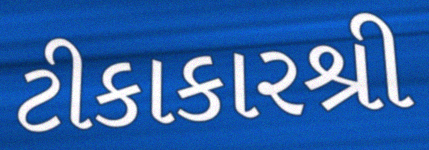
ટીકાકારશ્રી